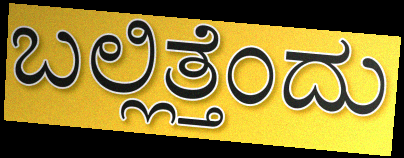
ಬಲ್ಲಿತ್ತೆಂದು